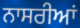
ਨਾਸਰੀਆਂ